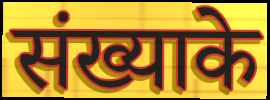
संख्याके